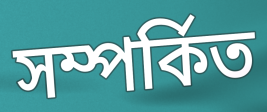
সম্পর্কিত